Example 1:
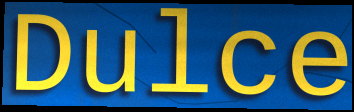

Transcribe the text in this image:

Dulce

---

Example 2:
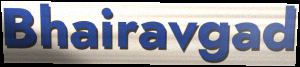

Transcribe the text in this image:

Bhairavgad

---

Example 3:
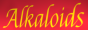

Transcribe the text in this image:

Alkaloids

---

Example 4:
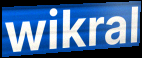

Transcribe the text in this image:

wikral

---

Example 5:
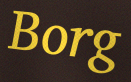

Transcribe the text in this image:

Borg